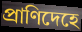
প্রাণিদেহে